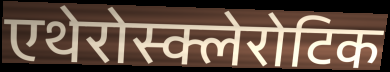
एथेरोस्क्लेरोटिक